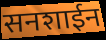
सनशाईन